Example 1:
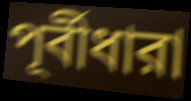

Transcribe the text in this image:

পূর্বীধারা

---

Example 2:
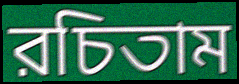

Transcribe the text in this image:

রচিতাম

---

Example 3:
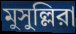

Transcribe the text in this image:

মুসুল্লিরা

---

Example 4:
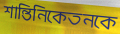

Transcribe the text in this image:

শান্তিনিকেতনকে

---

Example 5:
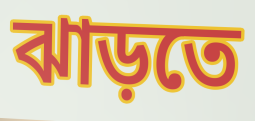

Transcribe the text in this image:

ঝাড়তে